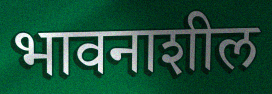
भावनाशील